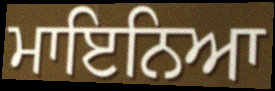
ਮਾਇਨਿਆ